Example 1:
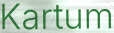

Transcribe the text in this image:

Kartum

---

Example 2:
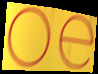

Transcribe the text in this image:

oe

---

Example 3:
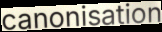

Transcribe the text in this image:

canonisation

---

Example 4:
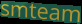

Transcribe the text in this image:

smteam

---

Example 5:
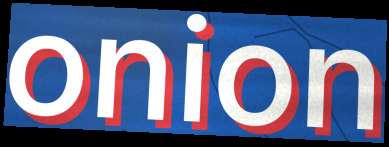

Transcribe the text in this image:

onion